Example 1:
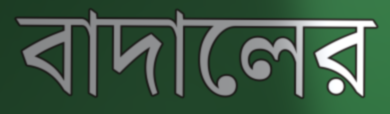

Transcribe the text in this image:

বাদালের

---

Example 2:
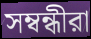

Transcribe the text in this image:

সম্বন্ধীরা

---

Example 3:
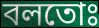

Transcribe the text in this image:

বলতোঃ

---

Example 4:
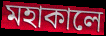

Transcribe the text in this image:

মহাকালে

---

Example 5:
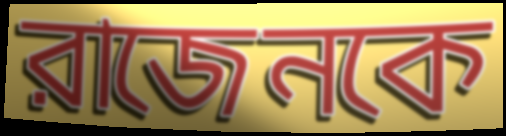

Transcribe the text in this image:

রাজেনকে